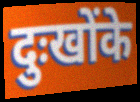
दुःखोंके